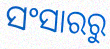
ସଂସାରରୁ